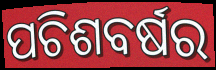
ପଚିଶବର୍ଷର